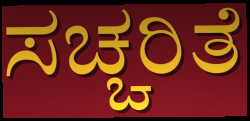
ಸಚ್ಚರಿತೆ